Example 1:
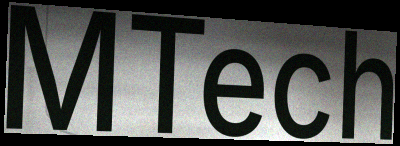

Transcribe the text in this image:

MTech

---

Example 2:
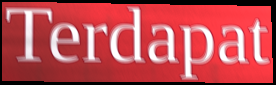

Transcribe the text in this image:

Terdapat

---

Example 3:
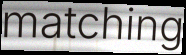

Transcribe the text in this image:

matching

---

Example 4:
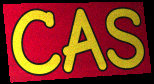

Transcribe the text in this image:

CAS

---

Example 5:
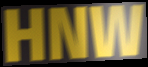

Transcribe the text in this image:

HNW